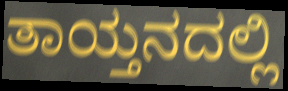
ತಾಯ್ತನದಲ್ಲಿ